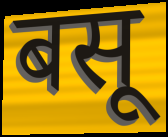
बसू